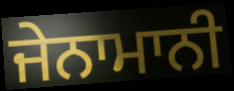
ਜੇਨਾਮਾਨੀ